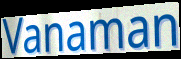
Vanaman